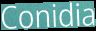
Conidia